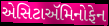
એસિટાઍમિનોફેન